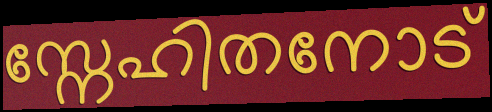
സ്നേഹിതനോട്